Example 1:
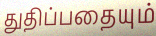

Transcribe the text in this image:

துதிப்பதையும்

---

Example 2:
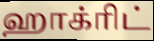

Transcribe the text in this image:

ஹாக்ரிட்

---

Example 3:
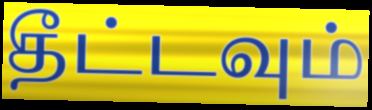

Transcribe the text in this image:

தீட்டவும்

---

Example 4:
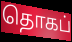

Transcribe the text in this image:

தொகப்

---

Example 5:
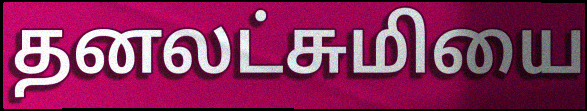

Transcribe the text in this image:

தனலட்சுமியை